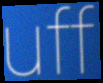
uff